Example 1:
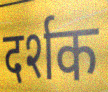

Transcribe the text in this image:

दर्शक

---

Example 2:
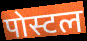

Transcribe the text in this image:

पोस्टल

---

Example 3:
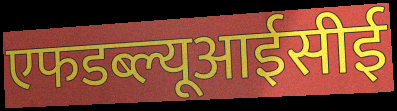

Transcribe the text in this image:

एफडब्ल्यूआईसीई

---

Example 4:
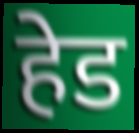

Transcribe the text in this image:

हेड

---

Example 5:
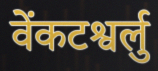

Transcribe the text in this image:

वेंकटश्वर्लु